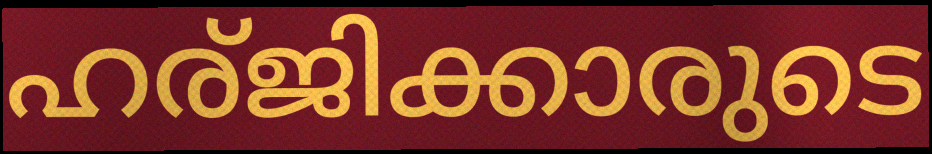
ഹര്ജിക്കാരുടെ